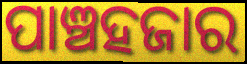
ପାଞ୍ଚହଜାର